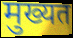
मुख्यत